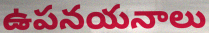
ఉపనయనాలు